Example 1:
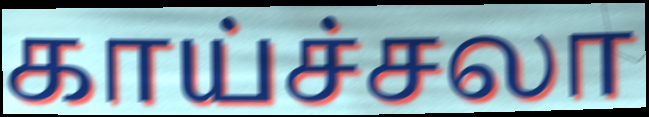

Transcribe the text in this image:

காய்ச்சலா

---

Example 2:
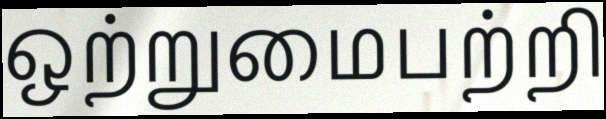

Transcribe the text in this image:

ஒற்றுமைபற்றி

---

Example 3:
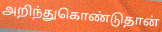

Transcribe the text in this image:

அறிந்துகொண்டுதான்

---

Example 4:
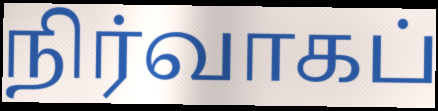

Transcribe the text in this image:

நிர்வாகப்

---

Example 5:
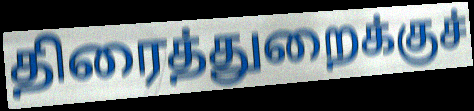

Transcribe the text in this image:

திரைத்துறைக்குச்